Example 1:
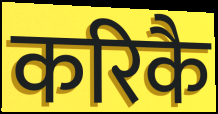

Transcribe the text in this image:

करिकै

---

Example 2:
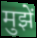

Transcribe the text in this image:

मुझें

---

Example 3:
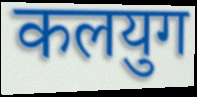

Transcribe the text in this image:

कलयुग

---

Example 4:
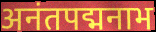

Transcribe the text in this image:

अनंतपद्मनाभ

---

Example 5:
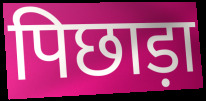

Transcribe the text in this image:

पिछाड़ा